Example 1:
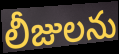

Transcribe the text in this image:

లీజులను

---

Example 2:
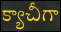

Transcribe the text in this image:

క్యాచీగా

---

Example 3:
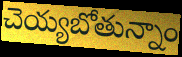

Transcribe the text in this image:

చెయ్యబోతున్నాం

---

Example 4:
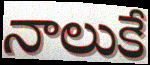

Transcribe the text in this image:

నాలుకే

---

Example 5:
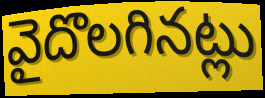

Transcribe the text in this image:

వైదొలగినట్లు